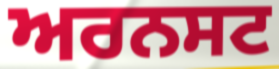
ਅਰਨਸਟ